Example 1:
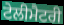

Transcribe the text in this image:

ਟੇਲੀਮੈਟਰੀ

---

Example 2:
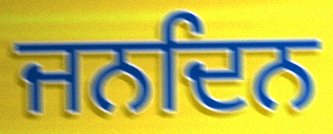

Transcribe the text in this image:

ਜਨਦਿਨ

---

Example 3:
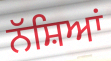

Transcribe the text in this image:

ਨੱਸ਼ਿਆਂ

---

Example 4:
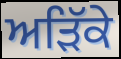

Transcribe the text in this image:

ਅੜਿੱਕੇ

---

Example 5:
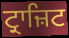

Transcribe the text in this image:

ਟ੍ਰਾਜ਼ਿਟ